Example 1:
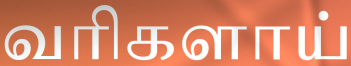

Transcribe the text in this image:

வரிகளாய்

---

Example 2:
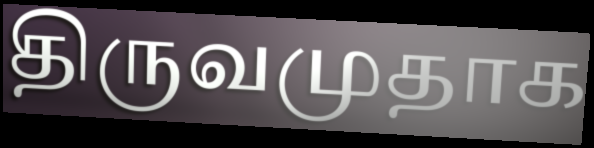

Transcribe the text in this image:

திருவமுதாக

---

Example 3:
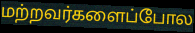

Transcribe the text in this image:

மற்றவர்களைப்போல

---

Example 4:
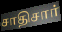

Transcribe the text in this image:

சாதிசார்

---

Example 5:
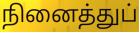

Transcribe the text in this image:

நினைத்துப்